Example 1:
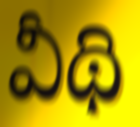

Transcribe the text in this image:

వీథి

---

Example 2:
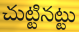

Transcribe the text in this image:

చుట్టినట్టు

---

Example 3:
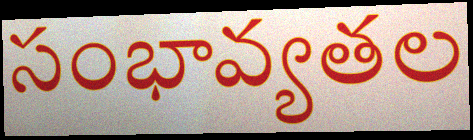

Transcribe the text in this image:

సంభావ్యతల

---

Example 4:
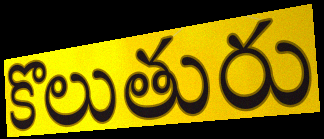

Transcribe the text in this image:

కొలుతురు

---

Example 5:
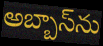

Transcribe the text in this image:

అబ్బాస్‌ను